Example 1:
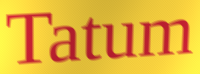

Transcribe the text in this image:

Tatum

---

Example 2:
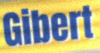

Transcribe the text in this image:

Gibert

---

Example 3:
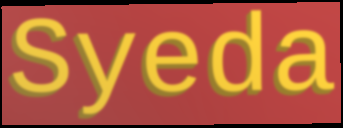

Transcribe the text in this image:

Syeda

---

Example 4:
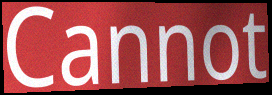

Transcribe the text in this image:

Cannot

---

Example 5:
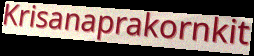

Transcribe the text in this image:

Krisanaprakornkit